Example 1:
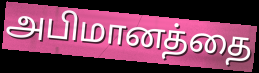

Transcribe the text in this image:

அபிமானத்தை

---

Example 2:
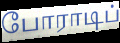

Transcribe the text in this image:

போராடிப்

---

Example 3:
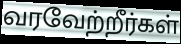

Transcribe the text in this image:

வரவேற்றீர்கள்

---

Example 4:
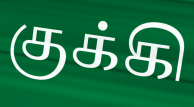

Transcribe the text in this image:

குக்கி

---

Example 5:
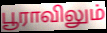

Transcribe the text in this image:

பூராவிலும்